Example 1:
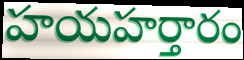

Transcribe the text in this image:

హయహర్తారం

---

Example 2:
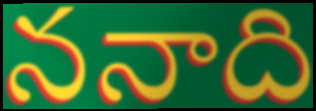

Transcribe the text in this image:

ననాది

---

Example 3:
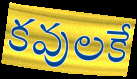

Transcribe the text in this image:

కవులకే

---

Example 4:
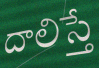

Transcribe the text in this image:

దాలిస్తే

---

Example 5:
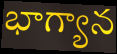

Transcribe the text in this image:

భాగ్యాన